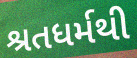
શ્રતધર્મથી